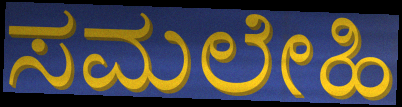
ಸಮಲೇಹಿ